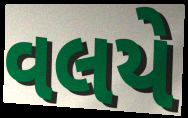
વલયે